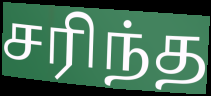
சரிந்த